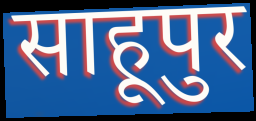
साहूपुर